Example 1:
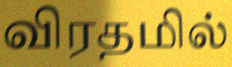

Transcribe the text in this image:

விரதமில்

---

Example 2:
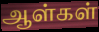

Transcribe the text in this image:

ஆள்கள்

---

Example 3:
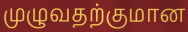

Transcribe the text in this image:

முழுவதற்குமான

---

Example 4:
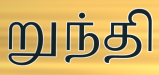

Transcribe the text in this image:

றுந்தி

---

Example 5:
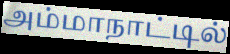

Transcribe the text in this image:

அம்மாநாட்டில்